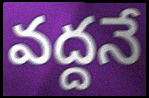
వద్దనే